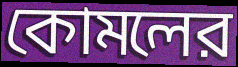
কোমলের